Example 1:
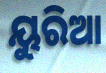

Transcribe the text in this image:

ୟୁରିଆ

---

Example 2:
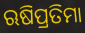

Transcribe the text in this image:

ଋଷିପ୍ରତିମା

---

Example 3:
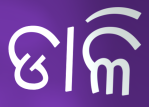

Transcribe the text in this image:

ଡାଳି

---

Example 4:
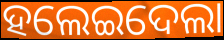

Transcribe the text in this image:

ହଲେଇଦେଲା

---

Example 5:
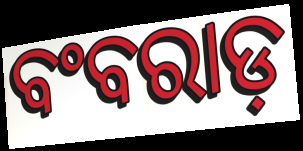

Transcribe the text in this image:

ବଂବରାଡ଼